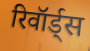
रिवॉर्ड्स